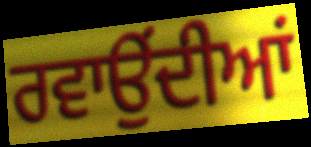
ਰਵਾਉਂਦੀਆਂ